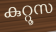
കുറ്റൂസ